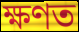
ক্ষণত